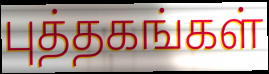
புத்தகங்கள்